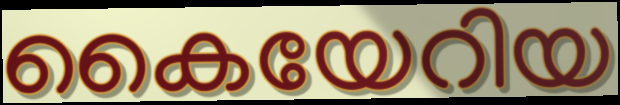
കൈയേറിയ